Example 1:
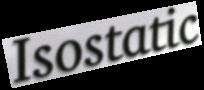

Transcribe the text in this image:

Isostatic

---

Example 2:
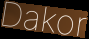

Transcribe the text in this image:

Dakor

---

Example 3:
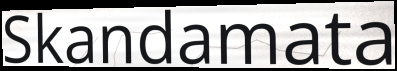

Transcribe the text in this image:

Skandamata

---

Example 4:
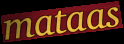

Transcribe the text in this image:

mataas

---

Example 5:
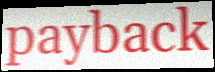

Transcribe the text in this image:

payback